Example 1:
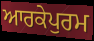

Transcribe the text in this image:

ਆਰਕੇਪੁਰਮ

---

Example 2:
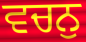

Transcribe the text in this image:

ਵਚਨੁ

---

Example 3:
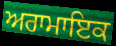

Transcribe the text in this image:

ਅਰਾਮਾਇਕ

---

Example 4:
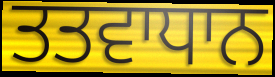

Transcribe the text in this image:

ਤਤਵਾਧਾਨ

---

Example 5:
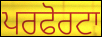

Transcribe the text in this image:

ਪਰਫੋਰਟਾ